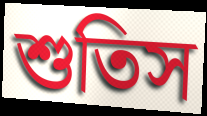
শুতিস